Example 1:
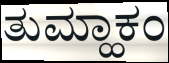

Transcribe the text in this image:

ತುಮ್ಹಾಕಂ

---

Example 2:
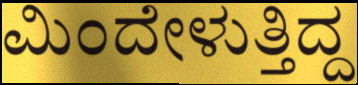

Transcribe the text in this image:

ಮಿಂದೇಳುತ್ತಿದ್ದ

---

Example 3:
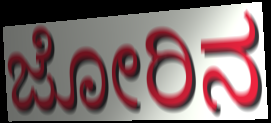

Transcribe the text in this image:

ಜೋರಿನ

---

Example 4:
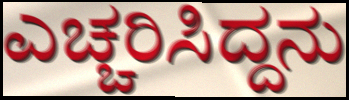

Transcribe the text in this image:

ಎಚ್ಚರಿಸಿದ್ದನು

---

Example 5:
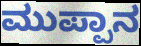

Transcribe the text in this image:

ಮುಪ್ಪಾನ